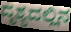
ದೃಶ್ಯದಲ್ಲಿನ